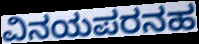
ವಿನಯಪರನಹ